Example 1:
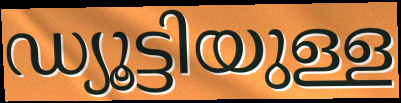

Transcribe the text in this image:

ഡ്യൂട്ടിയുള്ള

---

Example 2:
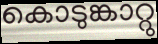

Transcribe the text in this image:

കൊടുങ്കാറ്റു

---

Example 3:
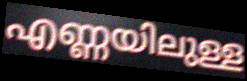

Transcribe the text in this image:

എണ്ണയിലുള്ള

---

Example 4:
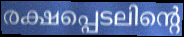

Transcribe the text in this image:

രക്ഷപ്പെടലിന്റെ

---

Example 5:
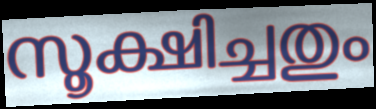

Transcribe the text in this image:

സൂക്ഷിച്ചതും